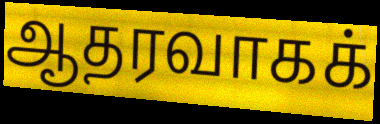
ஆதரவாகக்